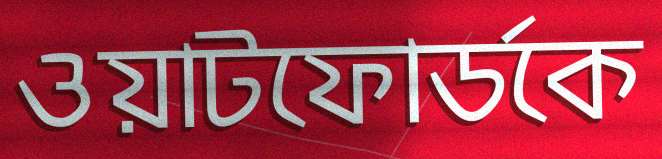
ওয়াটফোর্ডকে